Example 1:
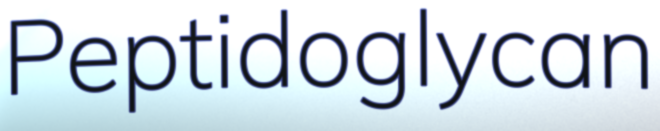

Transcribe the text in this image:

Peptidoglycan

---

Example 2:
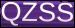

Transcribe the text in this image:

QZSS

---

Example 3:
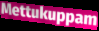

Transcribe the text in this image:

Mettukuppam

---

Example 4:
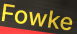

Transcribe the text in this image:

Fowke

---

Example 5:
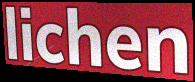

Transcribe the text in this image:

lichen